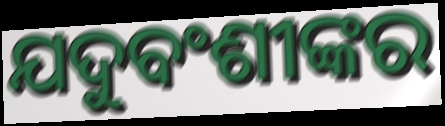
ଯଦୁବଂଶୀଙ୍କର